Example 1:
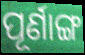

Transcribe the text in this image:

ପୂର୍ଣାଙ୍ଗ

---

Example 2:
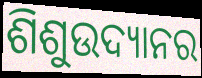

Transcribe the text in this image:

ଶିଶୁଉଦ୍ୟାନର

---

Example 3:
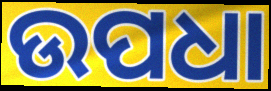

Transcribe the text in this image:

ଉପଧା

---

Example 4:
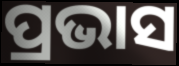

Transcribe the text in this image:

ପ୍ରଭାସ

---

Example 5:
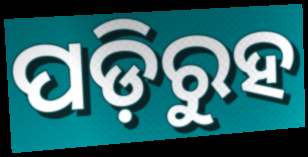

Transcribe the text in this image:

ପଡ଼ିରୁହ